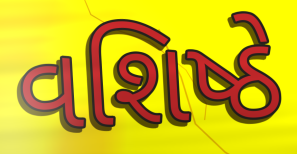
વશિષ્ઠે